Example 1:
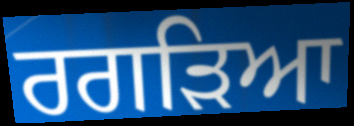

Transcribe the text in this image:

ਰਗੜਿਆ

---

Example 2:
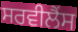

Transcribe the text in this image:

ਸਰਵੀਲੈਂਸ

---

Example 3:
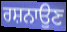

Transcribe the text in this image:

ਰਸ਼ਨਾਉਣ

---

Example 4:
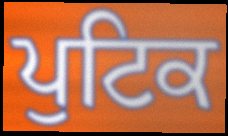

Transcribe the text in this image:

ਪੁਟਿਕ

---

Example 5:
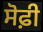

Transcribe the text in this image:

ਸੋਫ਼ੀ